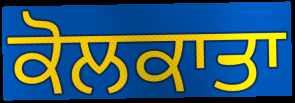
ਕੋਲਕਾਤਾ